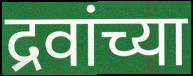
द्रवांच्या